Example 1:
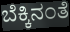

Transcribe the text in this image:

ಬೆಕ್ಕಿನಂತೆ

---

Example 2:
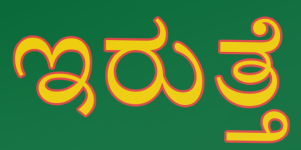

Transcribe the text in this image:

ಇರುತ್ತೆ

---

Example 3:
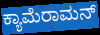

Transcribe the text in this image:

ಕ್ಯಾಮೆರಾಮನ್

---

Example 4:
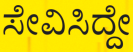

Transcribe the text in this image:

ಸೇವಿಸಿದ್ದೇ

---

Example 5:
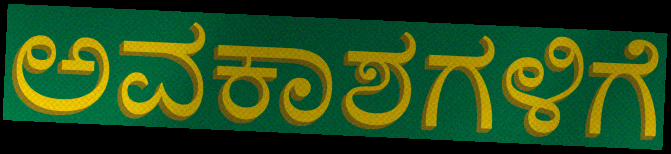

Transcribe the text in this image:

ಅವಕಾಶಗಳಿಗೆ